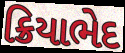
ક્રિયાભેદ